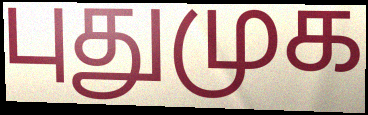
புதுமுக